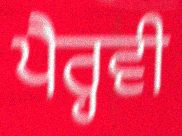
ਪੈਰ੍ਹਵੀ